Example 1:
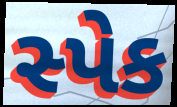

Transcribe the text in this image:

સ્પેક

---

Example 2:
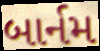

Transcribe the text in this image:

બાર્નમ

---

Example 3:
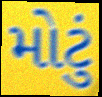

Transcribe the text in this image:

મોટું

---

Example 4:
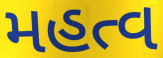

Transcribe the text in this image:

મહત્વ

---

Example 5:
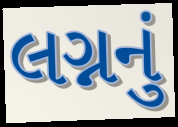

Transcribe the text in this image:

લગ્નનું